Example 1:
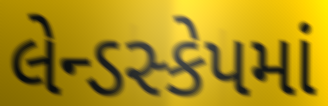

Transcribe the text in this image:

લેન્ડસ્કેપમાં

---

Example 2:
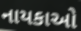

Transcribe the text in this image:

નાયકાઓ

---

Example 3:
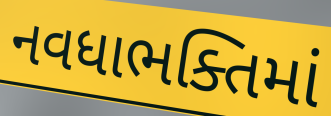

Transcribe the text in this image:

નવધાભક્તિમાં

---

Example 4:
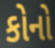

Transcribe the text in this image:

કોનો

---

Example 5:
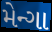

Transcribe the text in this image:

મેન્ગા